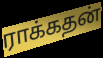
ராக்கதன்